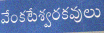
వేంకటేశ్వరకవులు